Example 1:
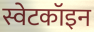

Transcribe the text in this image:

स्वेटकॉइन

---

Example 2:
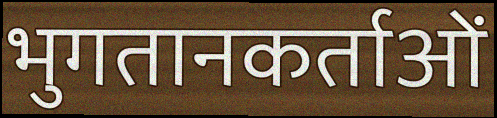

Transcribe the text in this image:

भुगतानकर्ताओं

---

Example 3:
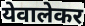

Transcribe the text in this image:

येवालेकर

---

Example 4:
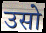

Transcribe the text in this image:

उसो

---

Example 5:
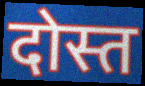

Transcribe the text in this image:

दोस्त